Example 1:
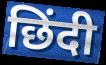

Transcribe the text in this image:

छिंदी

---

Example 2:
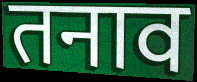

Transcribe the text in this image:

तनाव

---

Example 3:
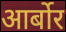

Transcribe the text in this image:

आर्बोर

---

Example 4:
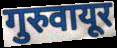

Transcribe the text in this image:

गुरुवायूर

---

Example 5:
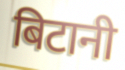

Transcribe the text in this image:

बिटानी